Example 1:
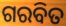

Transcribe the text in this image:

ଗରବିତ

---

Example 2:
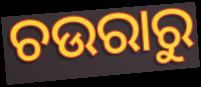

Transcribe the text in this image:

ଚଉରାରୁ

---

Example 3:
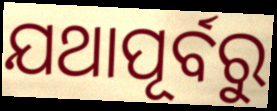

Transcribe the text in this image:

ଯଥାପୂର୍ବରୁ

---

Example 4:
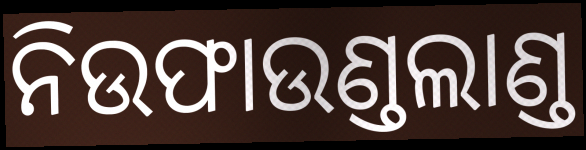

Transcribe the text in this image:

ନିଉଫାଉଣ୍ଡଲାଣ୍ଡ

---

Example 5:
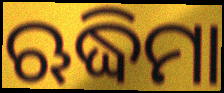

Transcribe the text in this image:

ଋଦ୍ଧିମା